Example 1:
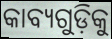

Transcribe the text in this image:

କାବ୍ୟଗୁଡ଼ିକୁ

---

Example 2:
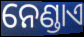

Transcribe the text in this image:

ନେଣ୍ଡାଏ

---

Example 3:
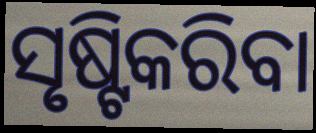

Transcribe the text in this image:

ସୃଷ୍ଟିକରିବା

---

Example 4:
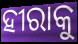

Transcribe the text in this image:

ହୀରାକୁ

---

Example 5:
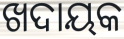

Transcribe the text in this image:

ଖଦାୟକ